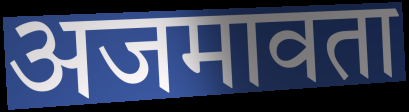
अजमावता